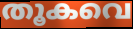
തൂകവെ